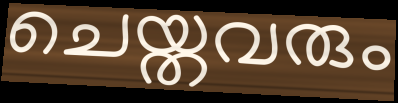
ചെയ്തവരും